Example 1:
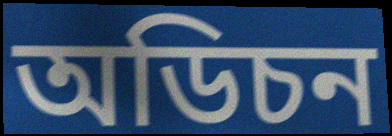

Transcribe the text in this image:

অডিচন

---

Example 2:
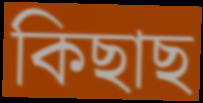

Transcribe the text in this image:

কিছাছ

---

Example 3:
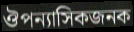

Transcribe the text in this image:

ঔপন্যাসিকজনক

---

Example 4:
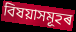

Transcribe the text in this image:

বিষয়াসমূহৰ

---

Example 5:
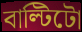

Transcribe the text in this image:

বাল্টিটো